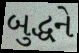
બુદ્ધને